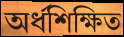
অর্ধশিক্ষিত